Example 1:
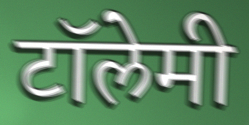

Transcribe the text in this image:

टॉलेमी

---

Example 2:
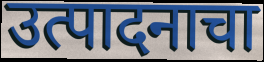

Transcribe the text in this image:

उत्पादनाचा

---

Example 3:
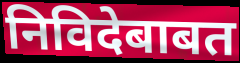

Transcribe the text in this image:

निविदेबाबत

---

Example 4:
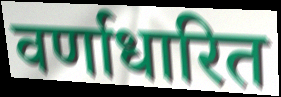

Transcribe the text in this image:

वर्णाधारित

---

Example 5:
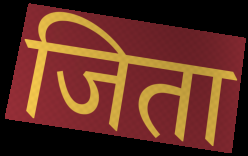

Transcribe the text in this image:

जिता